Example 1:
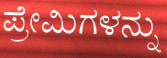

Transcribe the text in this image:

ಪ್ರೇಮಿಗಳನ್ನು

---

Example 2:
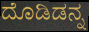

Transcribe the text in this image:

ದೊಡಿಡನ್ನ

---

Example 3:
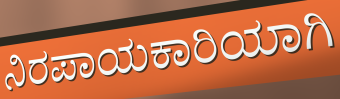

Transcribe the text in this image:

ನಿರಪಾಯಕಾರಿಯಾಗಿ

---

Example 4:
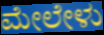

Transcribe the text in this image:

ಮೇಲೇಳು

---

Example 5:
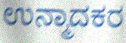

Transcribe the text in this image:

ಉನ್ಮಾದಕರ